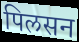
पिलसन